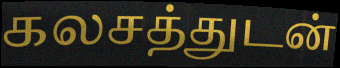
கலசத்துடன்